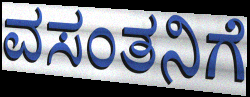
ವಸಂತನಿಗೆ